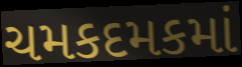
ચમકદમકમાં